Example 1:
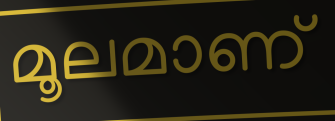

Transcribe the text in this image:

മൂലമാണ്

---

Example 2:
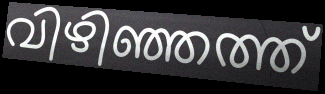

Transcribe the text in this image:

വിഴിഞ്ഞത്ത്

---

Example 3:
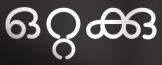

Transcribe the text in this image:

ഒറ്റക്കു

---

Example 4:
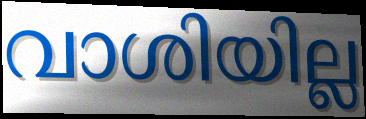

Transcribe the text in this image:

വാശിയില്ല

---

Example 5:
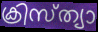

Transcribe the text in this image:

ക്രിസ്‌ത്യാ